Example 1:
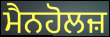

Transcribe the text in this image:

ਮੈਨਹੋਲਜ਼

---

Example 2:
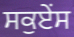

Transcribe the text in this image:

ਸਕੁਏਂਸ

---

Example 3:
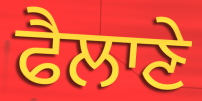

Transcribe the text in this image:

ਫੈਲਾਣੇ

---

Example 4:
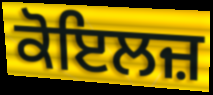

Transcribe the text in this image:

ਕੋਇਲਜ਼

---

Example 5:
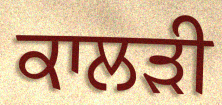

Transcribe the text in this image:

ਕਾਲੜੀ